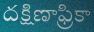
దక్షిణాఫ్రికా